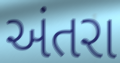
અંતરા